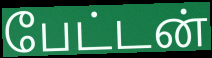
பேட்டன்